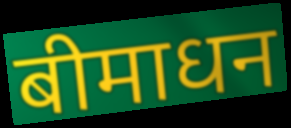
बीमाधन